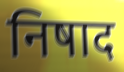
निषाद